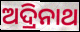
ଅଦ୍ରିନାଥ